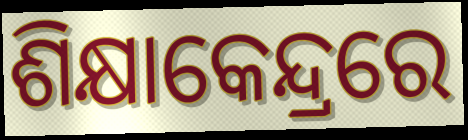
ଶିକ୍ଷାକେନ୍ଦ୍ରରେ